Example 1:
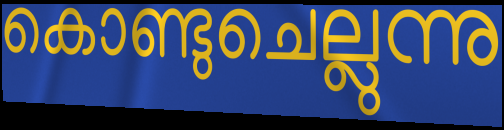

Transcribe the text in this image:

കൊണ്ടുചെല്ലുന്നു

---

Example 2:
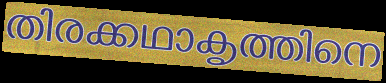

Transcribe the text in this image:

തിരക്കഥാകൃത്തിനെ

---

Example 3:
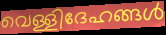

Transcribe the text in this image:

വെള്ളിദേഹങ്ങൾ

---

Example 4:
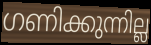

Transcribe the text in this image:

ഗണിക്കുന്നില്ല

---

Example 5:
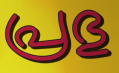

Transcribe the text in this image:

പ്രഭു